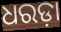
ଧରଡ଼ା